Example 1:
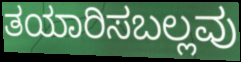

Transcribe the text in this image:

ತಯಾರಿಸಬಲ್ಲವು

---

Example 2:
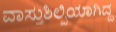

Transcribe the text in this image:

ವಾಸ್ತುಶಿಲ್ಪಿಯಾಗಿದ್ದ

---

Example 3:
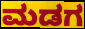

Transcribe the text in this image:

ಮಡಗ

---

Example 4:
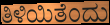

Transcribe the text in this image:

ತಿಳಿಯಿತೆಂದು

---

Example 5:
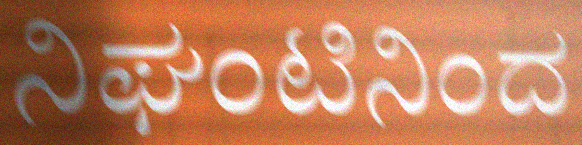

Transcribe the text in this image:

ನಿಘಂಟಿನಿಂದ